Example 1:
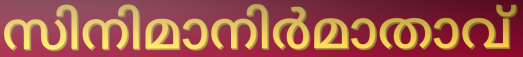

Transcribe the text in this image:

സിനിമാനിർമാതാവ്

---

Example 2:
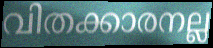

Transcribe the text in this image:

വിതക്കാരനല്ല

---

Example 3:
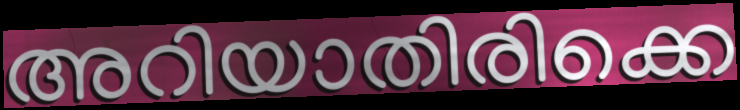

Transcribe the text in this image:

അറിയാതിരിക്കെ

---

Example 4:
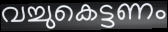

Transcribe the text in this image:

വച്ചുകെട്ടണം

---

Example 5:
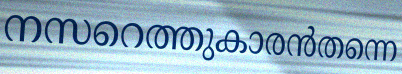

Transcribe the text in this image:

നസറെത്തുകാരൻതന്നെ